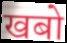
खबो